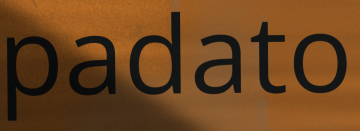
padato